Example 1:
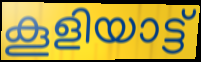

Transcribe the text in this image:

കൂളിയാട്ട്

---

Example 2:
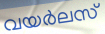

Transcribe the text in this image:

വയർലസ്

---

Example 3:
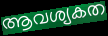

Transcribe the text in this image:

ആവശ്യകത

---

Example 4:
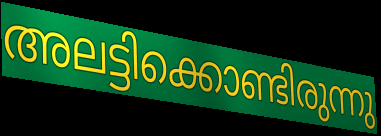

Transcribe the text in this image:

അലട്ടിക്കൊണ്ടിരുന്നു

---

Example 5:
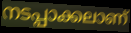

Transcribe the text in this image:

നടപ്പാക്കലാണ്